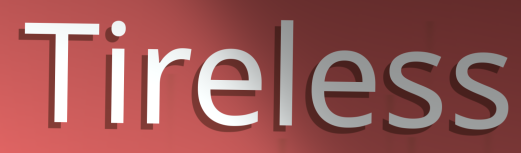
Tireless